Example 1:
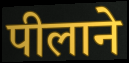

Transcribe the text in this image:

पीलाने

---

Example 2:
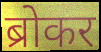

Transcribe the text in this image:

ब्रोकर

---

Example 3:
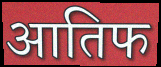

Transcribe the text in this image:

आतिफ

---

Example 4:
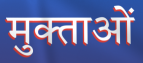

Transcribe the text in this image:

मुक्ताओं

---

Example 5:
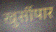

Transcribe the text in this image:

खुर्सीपार